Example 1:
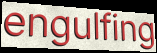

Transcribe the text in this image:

engulfing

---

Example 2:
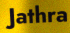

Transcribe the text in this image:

Jathra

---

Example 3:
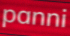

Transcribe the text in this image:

panni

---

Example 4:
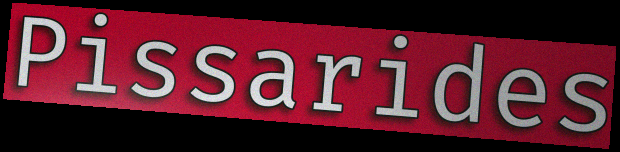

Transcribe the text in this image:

Pissarides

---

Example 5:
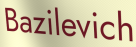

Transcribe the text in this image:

Bazilevich